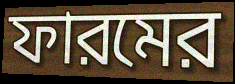
ফারমের